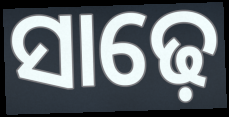
ସାଢ଼େ